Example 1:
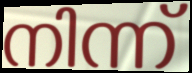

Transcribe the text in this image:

നിന്ന്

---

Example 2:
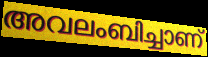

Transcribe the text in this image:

അവലംബിച്ചാണ്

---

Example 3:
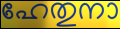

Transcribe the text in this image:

ഹേതുനാ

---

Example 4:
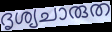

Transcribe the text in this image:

ദൃശ്യചാരുത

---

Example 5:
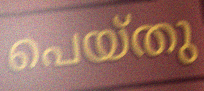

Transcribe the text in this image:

പെയ്തു